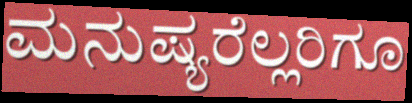
ಮನುಷ್ಯರೆಲ್ಲರಿಗೂ